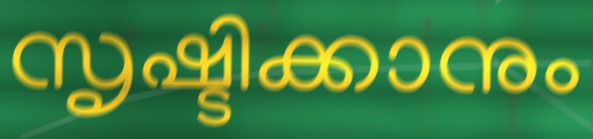
സൃഷ്ടിക്കാനും